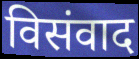
विसंवाद